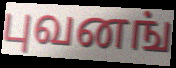
புவனங்